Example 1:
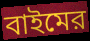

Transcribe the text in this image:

বাইমের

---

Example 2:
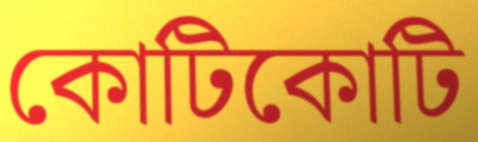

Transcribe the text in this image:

কোটিকোটি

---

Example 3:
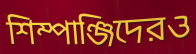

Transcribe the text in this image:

শিম্পাঞ্জিদেরও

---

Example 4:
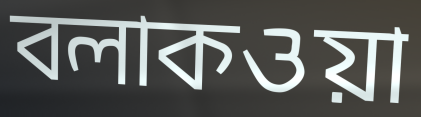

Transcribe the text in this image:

বলাকওয়া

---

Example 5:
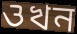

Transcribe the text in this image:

ওখন